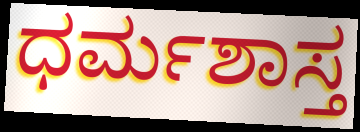
ಧರ್ಮಶಾಸ್ತ